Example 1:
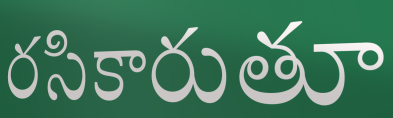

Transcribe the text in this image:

రసికారుతూ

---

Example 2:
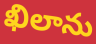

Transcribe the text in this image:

ఖిలాను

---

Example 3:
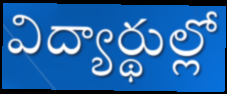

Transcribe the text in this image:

విద్యార్థుల్లో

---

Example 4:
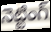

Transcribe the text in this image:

నెట్టింగ్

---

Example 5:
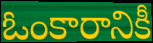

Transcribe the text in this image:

ఓంకారానికీ